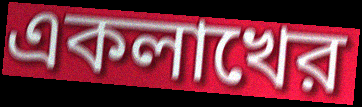
একলাখের